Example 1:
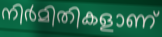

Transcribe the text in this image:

നിർമിതികളാണ്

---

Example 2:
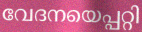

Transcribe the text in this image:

വേദനയെപ്പറ്റി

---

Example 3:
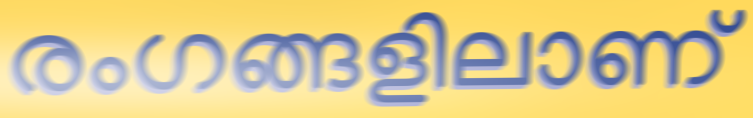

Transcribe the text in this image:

രംഗങ്ങളിലാണ്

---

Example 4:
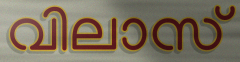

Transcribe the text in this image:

വിലാസ്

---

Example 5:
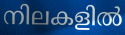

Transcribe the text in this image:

നിലകളിൽ